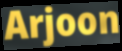
Arjoon